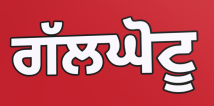
ਗੱਲਘੋਟੂ